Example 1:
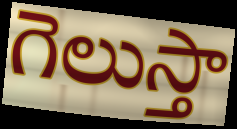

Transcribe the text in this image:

గెలుస్తా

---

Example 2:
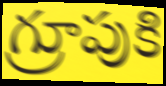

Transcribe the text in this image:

గ్రూపుకి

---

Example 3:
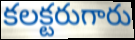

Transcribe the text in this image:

కలక్టరుగారు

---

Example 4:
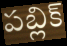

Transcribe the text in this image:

పబ్లిక్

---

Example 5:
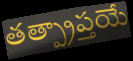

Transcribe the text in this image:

తత్ప్రాప్తయే